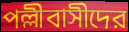
পল্লীবাসীদের